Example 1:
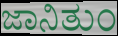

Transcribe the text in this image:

ಜಾನಿತುಂ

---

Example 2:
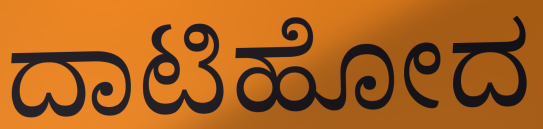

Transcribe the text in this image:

ದಾಟಿಹೋದ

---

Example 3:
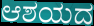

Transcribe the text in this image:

ಆಶಯದ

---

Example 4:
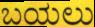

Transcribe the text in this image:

ಬಯಲು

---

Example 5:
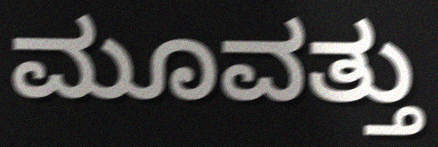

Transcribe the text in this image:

ಮೂವತ್ತು